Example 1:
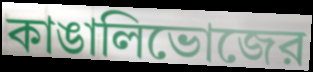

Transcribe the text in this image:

কাঙালিভোজের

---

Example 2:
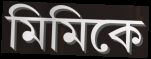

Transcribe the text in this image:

মিমিকে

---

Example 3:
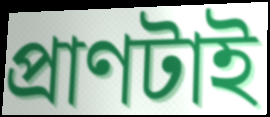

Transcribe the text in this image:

প্রাণটাই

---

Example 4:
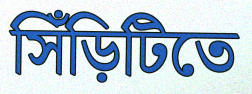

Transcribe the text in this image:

সিঁড়িটিতে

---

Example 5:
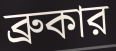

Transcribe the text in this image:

ব্রুকার